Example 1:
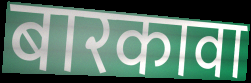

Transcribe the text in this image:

बारकावा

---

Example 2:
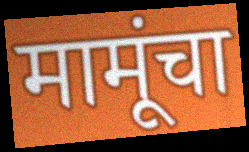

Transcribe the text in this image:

मामूंचा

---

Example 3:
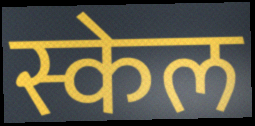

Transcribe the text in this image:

स्केल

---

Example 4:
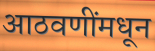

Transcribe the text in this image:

आठवणींमधून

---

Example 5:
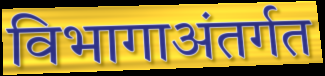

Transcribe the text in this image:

विभागाअंतर्गत